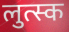
लुत्स्क